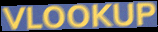
VLOOKUP